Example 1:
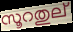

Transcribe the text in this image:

സൂറതുല്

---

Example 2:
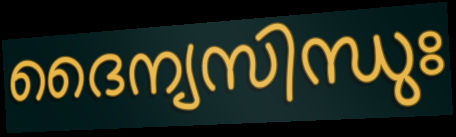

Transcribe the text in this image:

ദൈന്യസിന്ധുഃ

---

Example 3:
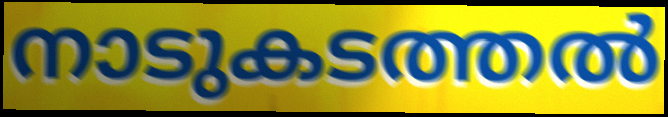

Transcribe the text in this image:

നാടുകടത്തൽ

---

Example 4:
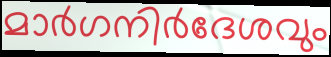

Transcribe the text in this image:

മാർഗനിർദേശവും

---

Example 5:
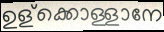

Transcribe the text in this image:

ഉള്ക്കൊള്ളാനേ